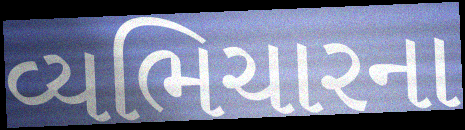
વ્યભિચારના